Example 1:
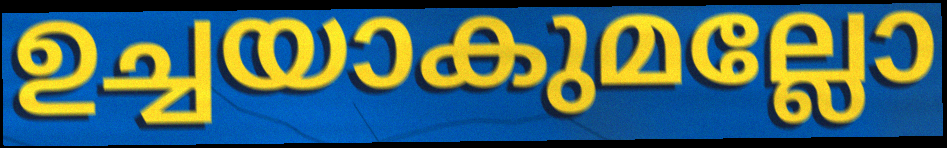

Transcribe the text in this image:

ഉച്ചയാകുമല്ലോ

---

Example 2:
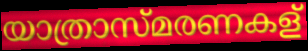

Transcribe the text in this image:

യാത്രാസ്മരണകള്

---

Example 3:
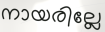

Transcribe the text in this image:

നായരില്ലേ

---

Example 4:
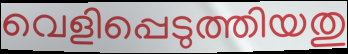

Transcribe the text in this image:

വെളിപ്പെടുത്തിയതു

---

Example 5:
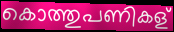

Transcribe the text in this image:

കൊത്തുപണികള്